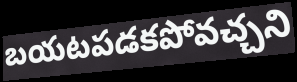
బయటపడకపోవచ్చని